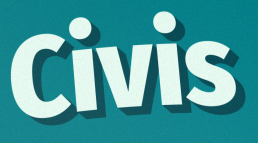
Civis